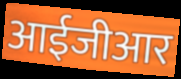
आईजीआर